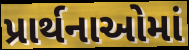
પ્રાર્થનાઓમાં